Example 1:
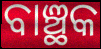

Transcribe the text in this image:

ବାଞ୍ଛକ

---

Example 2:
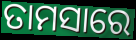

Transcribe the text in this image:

ତାମସାରେ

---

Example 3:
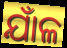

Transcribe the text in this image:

ଯାଁଳ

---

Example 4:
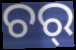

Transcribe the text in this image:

ଚର୍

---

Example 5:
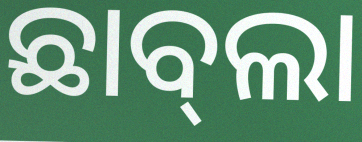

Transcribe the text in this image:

ଛାବ୍‍ଲା